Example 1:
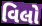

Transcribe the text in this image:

વિલો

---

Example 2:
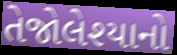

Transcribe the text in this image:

તેજોલેશ્યાનો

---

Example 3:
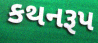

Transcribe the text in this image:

કથનરૂપ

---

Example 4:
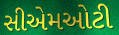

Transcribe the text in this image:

સીએમઓટી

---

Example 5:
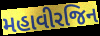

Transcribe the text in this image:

મહાવીરજિન